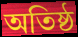
অতিষ্ঠ